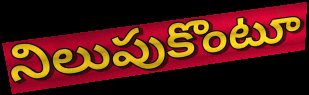
నిలుపుకొంటూ